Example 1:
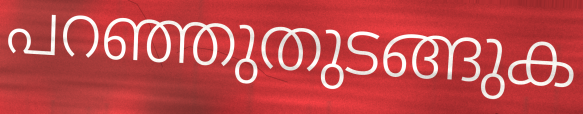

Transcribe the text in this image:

പറഞ്ഞുതുടങ്ങുക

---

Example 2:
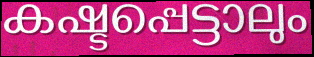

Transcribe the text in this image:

കഷ്ടപ്പെട്ടാലും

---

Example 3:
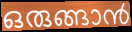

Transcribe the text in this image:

ഒരുങ്ങാൻ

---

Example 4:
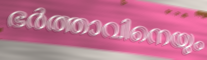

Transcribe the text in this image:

ഭർത്താവിനെയും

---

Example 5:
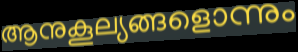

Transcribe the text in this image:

ആനുകൂല്യങ്ങളൊന്നും